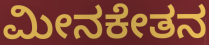
ಮೀನಕೇತನ